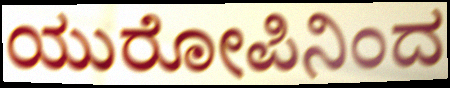
ಯುರೋಪಿನಿಂದ